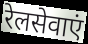
रेलसेवाएं